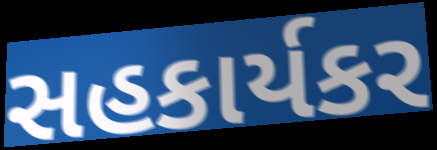
સહકાર્યકર